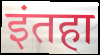
इंतहा